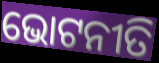
ଭୋଟନୀତି